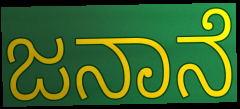
ಜನಾನೆ